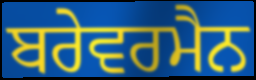
ਬਰੇਵਰਮੈਨ